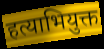
हत्याभियुक्त